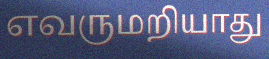
எவருமறியாது